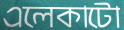
এলেকাটো